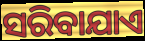
ସରିବାଯାଏ